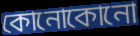
কোনোকোনো